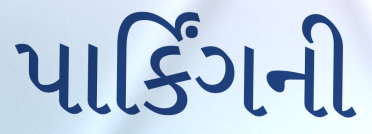
પાર્કિંગની